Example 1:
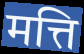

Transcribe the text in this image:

मत्ति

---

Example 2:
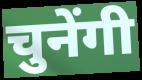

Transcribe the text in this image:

चुनेंगी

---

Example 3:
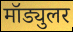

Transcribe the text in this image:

मॉड्युलर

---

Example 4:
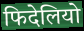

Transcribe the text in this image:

फिदेलियो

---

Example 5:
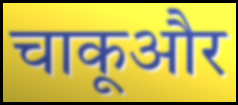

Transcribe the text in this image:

चाकूऔर